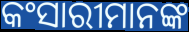
କଂସାରୀମାନଙ୍କ